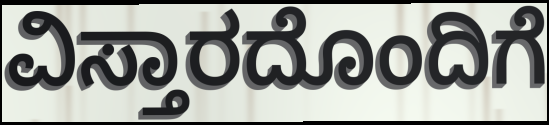
ವಿಸ್ತಾರದೊಂದಿಗೆ